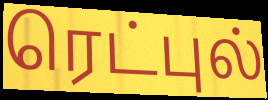
ரெட்புல்